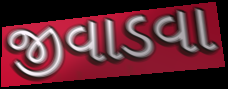
જીવાડવા